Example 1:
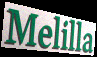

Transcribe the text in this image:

Melilla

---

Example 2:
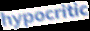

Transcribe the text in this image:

hypocritic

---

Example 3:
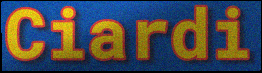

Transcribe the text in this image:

Ciardi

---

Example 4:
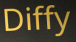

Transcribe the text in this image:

Diffy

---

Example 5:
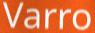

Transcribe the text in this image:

Varro